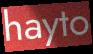
hayto